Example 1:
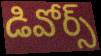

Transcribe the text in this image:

డివోర్స్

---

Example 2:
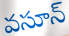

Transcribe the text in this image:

వసూన్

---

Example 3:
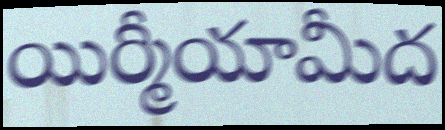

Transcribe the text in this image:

యిర్మీయామీద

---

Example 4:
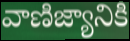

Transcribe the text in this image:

వాణిజ్యానికి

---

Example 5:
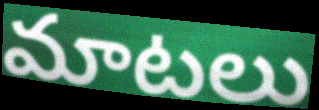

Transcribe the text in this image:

మాటలు